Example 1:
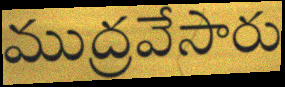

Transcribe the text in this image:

ముద్రవేసారు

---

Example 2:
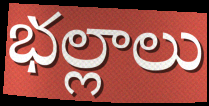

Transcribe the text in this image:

భల్లాలు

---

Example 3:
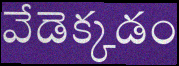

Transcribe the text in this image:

వేడెక్కడం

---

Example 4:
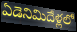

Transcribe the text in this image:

ఏడెనిమిదేళ్లలో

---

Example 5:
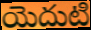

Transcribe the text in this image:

యెదుటి